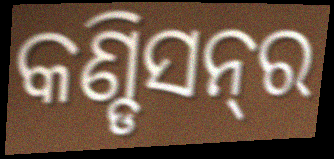
କଣ୍ଡିସନ୍‌ର